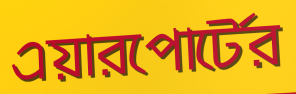
এয়ারপোর্টের